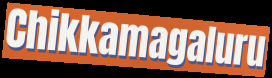
Chikkamagaluru